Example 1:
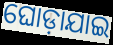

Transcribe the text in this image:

ଘୋଡ଼ାଯାଇ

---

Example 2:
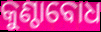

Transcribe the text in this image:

କୁଣ୍ଠାବୋଧ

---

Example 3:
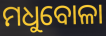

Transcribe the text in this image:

ମଧୁବୋଳା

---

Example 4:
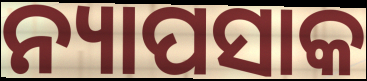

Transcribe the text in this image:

ନ୍ୟାପସାକ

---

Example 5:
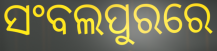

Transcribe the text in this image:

ସଂବଲପୁରରେ